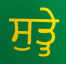
ਸੁਤ੍ਤੇ